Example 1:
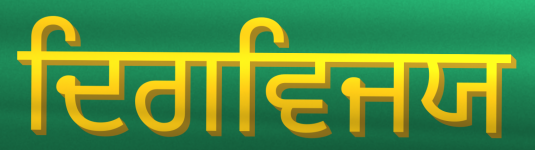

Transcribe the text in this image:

ਦਿਗਵਿਜਯ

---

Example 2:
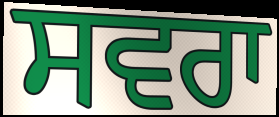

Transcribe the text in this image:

ਸਵਰਾ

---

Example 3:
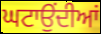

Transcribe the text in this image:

ਘਟਾਉਂਦੀਆਂ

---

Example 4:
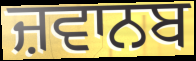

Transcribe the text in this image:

ਜ਼ਵਾਨਬ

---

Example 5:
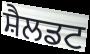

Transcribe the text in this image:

ਸ਼ੈਲਡਟ